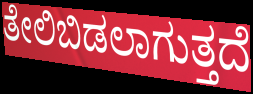
ತೇಲಿಬಿಡಲಾಗುತ್ತದೆ